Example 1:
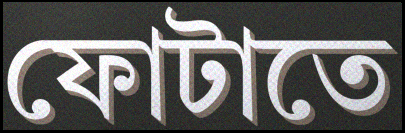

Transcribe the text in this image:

ফোটাতে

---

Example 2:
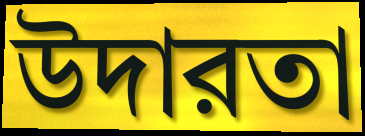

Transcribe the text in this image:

উদারতা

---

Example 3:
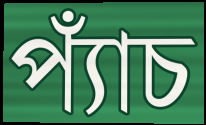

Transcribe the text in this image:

প্যাঁচ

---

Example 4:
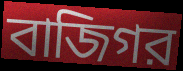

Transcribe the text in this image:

বাজিগর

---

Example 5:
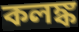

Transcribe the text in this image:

কলঙ্ক